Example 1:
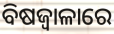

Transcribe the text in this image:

ବିଷଜ୍ୱାଳାରେ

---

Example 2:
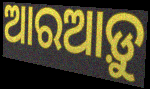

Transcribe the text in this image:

ଆରଆଡ଼ୁ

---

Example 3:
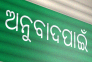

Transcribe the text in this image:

ଅନୁବାଦପାଇଁ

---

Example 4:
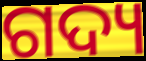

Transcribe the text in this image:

ଗଦ୍ୟ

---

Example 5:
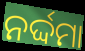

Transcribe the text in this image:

ନର୍ଦ୍ଦମା